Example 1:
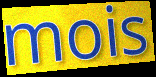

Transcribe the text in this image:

mois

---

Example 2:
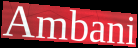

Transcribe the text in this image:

Ambani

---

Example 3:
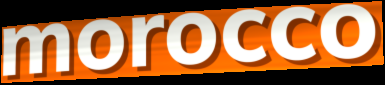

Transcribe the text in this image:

morocco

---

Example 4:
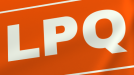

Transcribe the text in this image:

LPQ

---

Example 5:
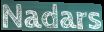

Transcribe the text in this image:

Nadars